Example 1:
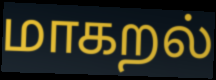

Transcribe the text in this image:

மாகறல்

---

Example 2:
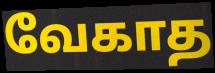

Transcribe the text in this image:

வேகாத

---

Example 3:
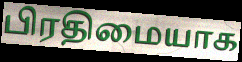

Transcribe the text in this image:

பிரதிமையாக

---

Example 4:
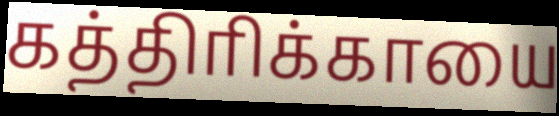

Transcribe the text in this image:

கத்திரிக்காயை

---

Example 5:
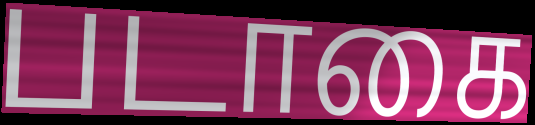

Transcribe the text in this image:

படாகை